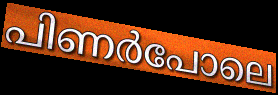
പിണർപോലെ